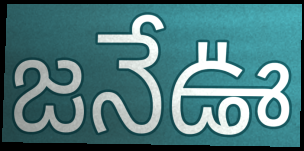
జనేఊ